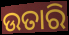
ଉତାରି